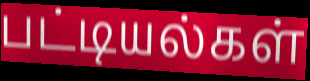
பட்டியல்கள்